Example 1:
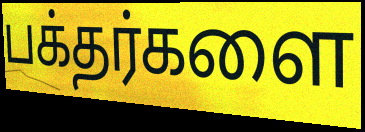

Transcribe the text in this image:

பக்தர்களை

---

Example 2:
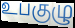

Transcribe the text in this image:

உபகுழு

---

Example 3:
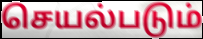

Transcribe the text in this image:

செயல்படும்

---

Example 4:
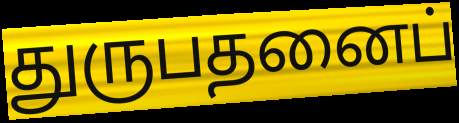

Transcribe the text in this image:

துருபதனைப்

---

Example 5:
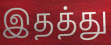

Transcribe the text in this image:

இதத்து